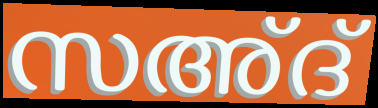
സഅ്ദ്